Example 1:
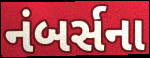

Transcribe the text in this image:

નંબર્સના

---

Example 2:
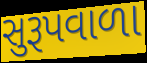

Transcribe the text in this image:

સુરૂપવાળા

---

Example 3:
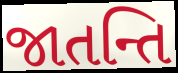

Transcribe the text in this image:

જાતન્તિ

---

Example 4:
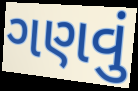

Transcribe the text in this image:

ગણવું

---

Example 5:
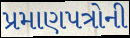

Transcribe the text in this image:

પ્રમાણપત્રોની